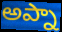
అప్నా